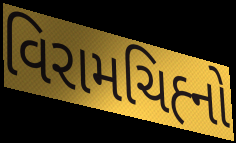
વિરામચિહ્‍નો